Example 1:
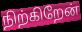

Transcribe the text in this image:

நிற்கிறேன்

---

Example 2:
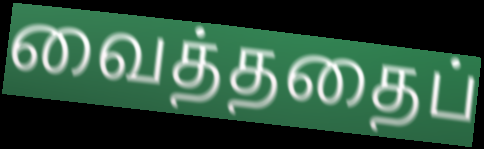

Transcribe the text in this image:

வைத்ததைப்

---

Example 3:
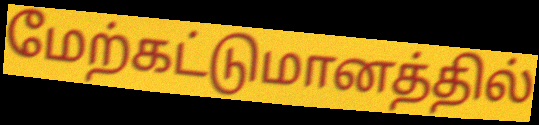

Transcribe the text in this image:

மேற்கட்டுமானத்தில்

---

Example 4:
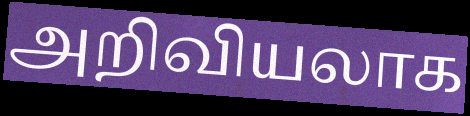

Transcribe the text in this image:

அறிவியலாக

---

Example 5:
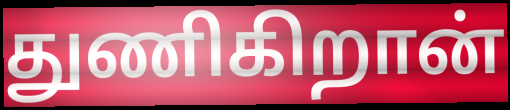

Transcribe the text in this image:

துணிகிறான்